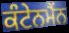
ਕੰਟੇਨਮੈਂਨ